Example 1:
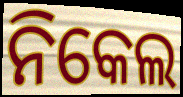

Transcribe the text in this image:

ନିକେଲ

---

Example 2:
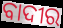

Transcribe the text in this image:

ବାଦୀର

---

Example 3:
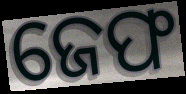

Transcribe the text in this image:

ଜେଫ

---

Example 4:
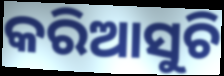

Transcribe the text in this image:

କରିଆସୁଚି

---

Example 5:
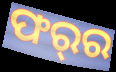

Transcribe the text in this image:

ଫର୍‌ର